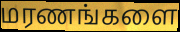
மரணங்களை